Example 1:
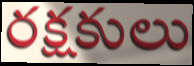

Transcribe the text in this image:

రక్షకులు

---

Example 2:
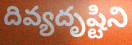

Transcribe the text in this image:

దివ్యదృష్టిని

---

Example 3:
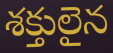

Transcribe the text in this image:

శక్తులైన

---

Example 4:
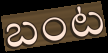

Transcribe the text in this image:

బంట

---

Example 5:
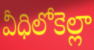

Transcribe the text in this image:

వీధిలోకెల్లా